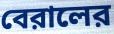
বেরালের